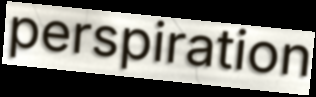
perspiration